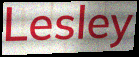
Lesley